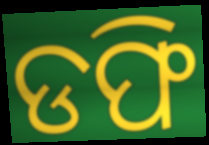
ଡଫି